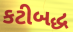
કટીબદ્ધ